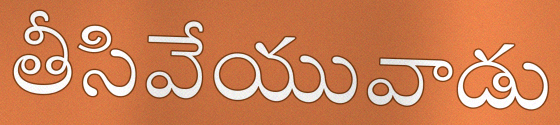
తీసివేయువాడు